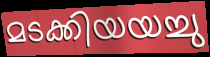
മടക്കിയയച്ചു